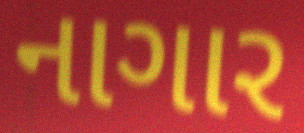
નાગાર